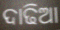
ଦାଢିଆ